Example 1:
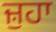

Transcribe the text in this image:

ਜ਼ੁਹਾ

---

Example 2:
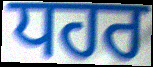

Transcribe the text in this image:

ਧਹਰ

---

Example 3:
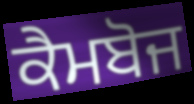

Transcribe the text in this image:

ਕੈਮਬੋਜ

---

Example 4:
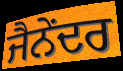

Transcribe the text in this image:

ਜੈਨੇਂਦਰ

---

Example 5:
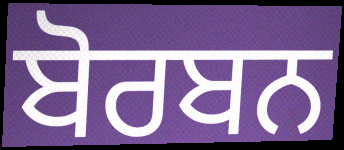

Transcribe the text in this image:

ਬੋਰਬਨ